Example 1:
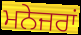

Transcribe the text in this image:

ਮਨੇਜਰਾਂ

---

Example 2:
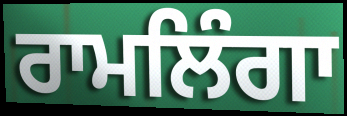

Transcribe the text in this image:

ਰਾਮਲਿੰਗਾ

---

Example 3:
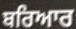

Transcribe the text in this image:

ਬਰਿਆਰ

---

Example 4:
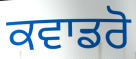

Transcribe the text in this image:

ਕਵਾਡਰੋ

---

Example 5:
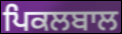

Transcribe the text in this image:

ਪਿਕਲਬਾਲ